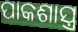
ପାକଶାସ୍ତ୍ର